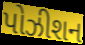
પોઝીશન